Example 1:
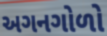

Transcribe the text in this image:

અગનગોળો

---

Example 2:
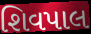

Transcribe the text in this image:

શિવપાલ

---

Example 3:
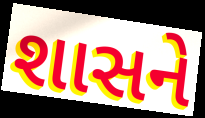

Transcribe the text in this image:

શાસને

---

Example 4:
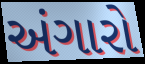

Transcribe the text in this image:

અંગારો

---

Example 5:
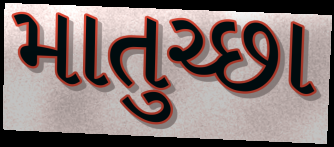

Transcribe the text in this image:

માતુચ્છા